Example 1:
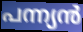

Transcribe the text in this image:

പന്ന്യൻ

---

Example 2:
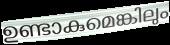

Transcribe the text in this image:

ഉണ്ടാകുമെങ്കിലും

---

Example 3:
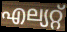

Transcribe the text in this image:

എല്യറ്റ്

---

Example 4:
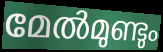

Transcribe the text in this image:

മേൽമുണ്ടും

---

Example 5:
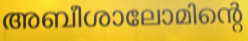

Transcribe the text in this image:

അബീശാലോമിന്റെ